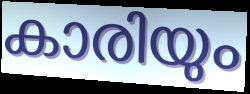
കാരിയും